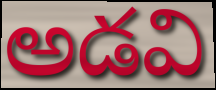
అడవి